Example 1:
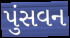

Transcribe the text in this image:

પુંસવન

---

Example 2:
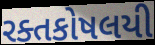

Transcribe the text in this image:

રક્તકોષલયી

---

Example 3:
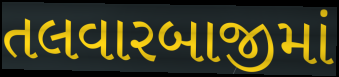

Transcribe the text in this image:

તલવારબાજીમાં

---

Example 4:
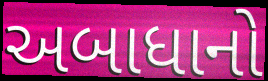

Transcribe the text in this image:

અબાધાનો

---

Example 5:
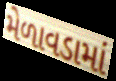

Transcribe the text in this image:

મેળાવડામાં